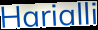
Harialli